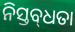
ନିସ୍ତବ୍‌ଧତା